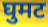
घुमट